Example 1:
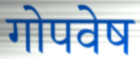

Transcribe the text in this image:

गोपवेष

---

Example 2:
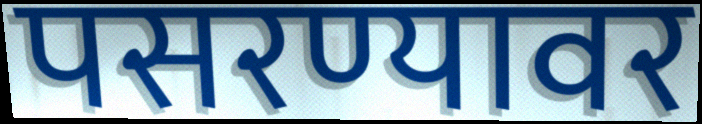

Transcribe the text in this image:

पसरण्यावर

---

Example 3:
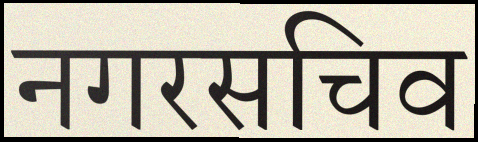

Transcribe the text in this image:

नगरसचिव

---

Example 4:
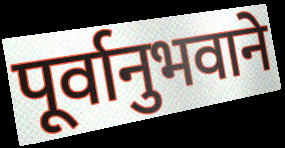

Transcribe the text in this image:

पूर्वानुभवाने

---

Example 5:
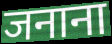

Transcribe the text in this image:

जनाना